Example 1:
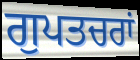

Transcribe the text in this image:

ਗੁਪਤਚਰਾਂ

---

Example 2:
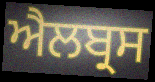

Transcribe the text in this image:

ਐਲਬ੍ਰਸ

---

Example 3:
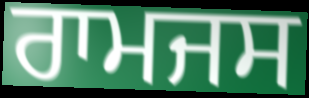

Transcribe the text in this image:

ਰਾਮਜਸ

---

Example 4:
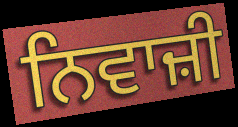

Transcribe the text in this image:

ਨਿਵਾਜ਼ੀ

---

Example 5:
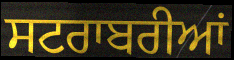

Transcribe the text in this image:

ਸਟਰਾਬਰੀਆਂ